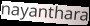
nayanthara